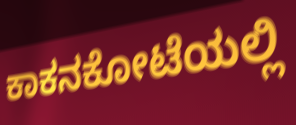
ಕಾಕನಕೋಟೆಯಲ್ಲಿ